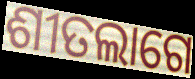
ଶୀତଲାଗେ